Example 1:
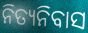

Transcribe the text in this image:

ନିତ୍ୟନିବାସ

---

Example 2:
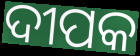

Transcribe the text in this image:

ଦୀପକ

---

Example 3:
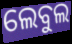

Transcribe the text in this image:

ଲେବୁଲ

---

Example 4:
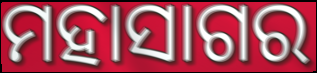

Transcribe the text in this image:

ମହାସାଗର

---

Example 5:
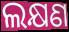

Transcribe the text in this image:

ଲକ୍ଷଣ